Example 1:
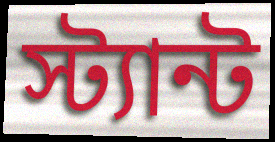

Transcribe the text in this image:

স্ট্যান্ট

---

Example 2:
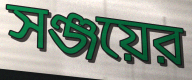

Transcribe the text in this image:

সঞ্জয়ের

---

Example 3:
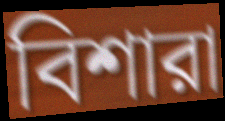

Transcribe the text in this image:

বিশারা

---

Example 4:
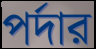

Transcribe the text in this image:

পর্দার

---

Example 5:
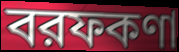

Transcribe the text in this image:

বরফকণা